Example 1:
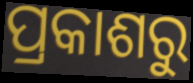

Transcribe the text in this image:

ପ୍ରକାଶରୁ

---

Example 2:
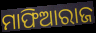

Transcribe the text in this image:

ମାଫିଆରାଜ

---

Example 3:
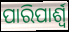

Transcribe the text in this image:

ପାରିପାର୍ଶ୍ୱ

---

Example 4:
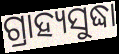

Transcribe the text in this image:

ଗ୍ରାହ୍ୟସୁଦ୍ଧା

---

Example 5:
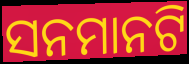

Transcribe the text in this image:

ସନମାନଟି